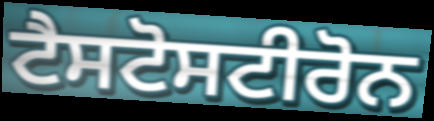
ਟੈਸਟੋਸਟੀਰੋਨ